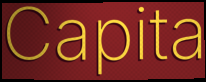
Capita